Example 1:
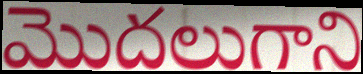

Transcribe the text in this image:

మొదలుగాని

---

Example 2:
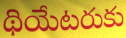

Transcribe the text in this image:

థియేటరుకు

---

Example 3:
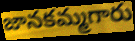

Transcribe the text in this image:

జానకమ్మగారు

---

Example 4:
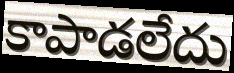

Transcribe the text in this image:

కాపాడలేదు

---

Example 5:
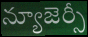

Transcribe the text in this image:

న్యూజెర్సీ